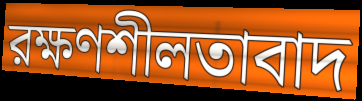
রক্ষণশীলতাবাদ